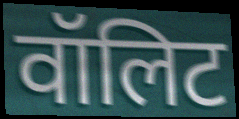
वॉलिट